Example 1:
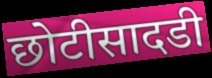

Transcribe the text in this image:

छोटीसादडी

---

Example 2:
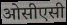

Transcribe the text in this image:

ओसीएसी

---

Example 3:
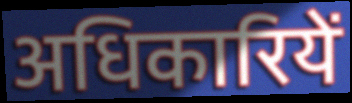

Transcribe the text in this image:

अधिकारियें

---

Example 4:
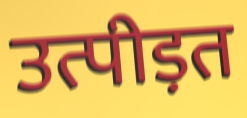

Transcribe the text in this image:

उत्पीड़त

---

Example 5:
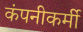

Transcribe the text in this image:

कंपनीकर्मी